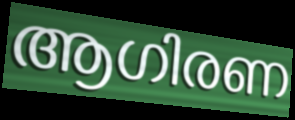
ആഗിരണ